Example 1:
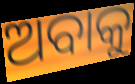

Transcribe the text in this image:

ଅବାକୁ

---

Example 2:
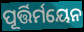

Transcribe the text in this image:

ପୂର୍ତ୍ତିର୍ମୟେନ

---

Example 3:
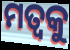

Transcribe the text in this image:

ମତ୍ୱକୁ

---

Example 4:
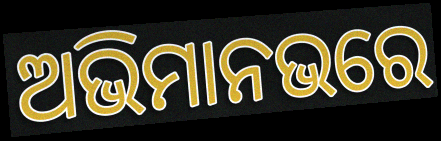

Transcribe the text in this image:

ଅଭିମାନଭରେ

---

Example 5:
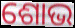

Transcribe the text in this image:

ଶୋଭ